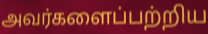
அவர்களைப்பற்றிய